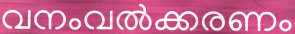
വനംവൽക്കരണം